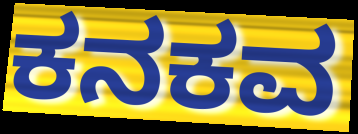
ಕನಕವ